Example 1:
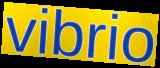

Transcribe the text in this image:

vibrio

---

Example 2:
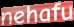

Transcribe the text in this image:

nehafu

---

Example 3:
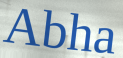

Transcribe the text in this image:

Abha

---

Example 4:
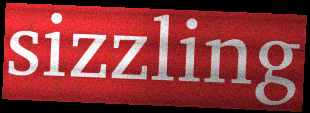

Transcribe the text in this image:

sizzling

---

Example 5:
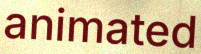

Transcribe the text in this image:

animated